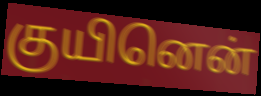
குயினென்